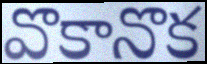
వొకానొక